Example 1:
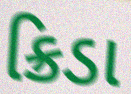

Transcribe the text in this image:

ક્રિડા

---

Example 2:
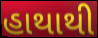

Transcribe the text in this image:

હાથાથી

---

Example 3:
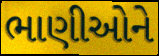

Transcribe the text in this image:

ભાણીઓને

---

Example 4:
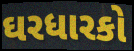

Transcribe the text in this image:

ઘરધારકો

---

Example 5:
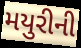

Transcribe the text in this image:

મયુરીની